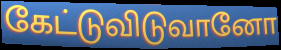
கேட்டுவிடுவானோ